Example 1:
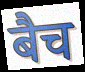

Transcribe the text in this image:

बैच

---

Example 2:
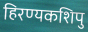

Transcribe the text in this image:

हिरण्यकशिपु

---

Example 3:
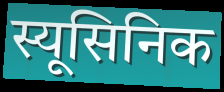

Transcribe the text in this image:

स्यूसिनिक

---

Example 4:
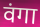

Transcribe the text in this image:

वंगा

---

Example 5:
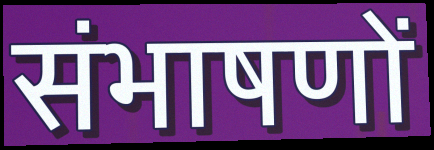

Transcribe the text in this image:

संभाषणों